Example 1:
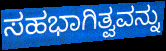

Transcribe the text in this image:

ಸಹಭಾಗಿತ್ವವನ್ನು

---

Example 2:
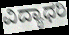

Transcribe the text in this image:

ವಿದ್ಯಾಧರಿ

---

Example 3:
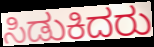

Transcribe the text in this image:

ಸಿಡುಕಿದರು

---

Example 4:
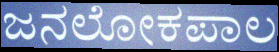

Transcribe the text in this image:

ಜನಲೋಕಪಾಲ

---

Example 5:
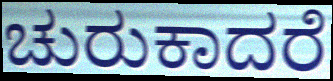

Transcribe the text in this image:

ಚುರುಕಾದರೆ